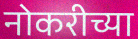
नोकरीच्या